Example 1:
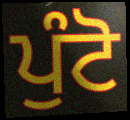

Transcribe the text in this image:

ਪੁੰਟੋ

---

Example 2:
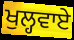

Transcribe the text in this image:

ਖੁਲ੍ਹਵਾਏ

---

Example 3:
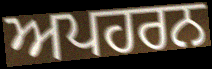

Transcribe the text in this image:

ਅਪਹਰਨ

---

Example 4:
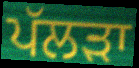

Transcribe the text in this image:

ਪੱਲੜਾ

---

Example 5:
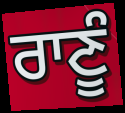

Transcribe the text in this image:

ਰਾਣੂੰ